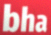
bha